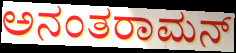
ಅನಂತರಾಮನ್